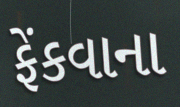
ફેંકવાના